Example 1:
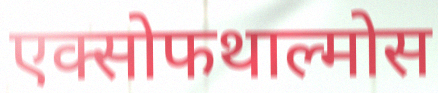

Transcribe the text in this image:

एक्सोफथाल्मोस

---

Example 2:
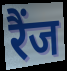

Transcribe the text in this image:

रैंज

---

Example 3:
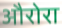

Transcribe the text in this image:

औरोरा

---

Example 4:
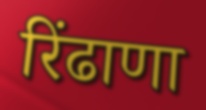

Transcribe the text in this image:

रिंढाणा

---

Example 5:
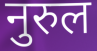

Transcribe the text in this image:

नुरुल